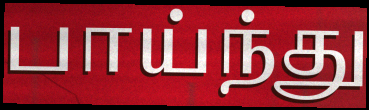
பாய்ந்து